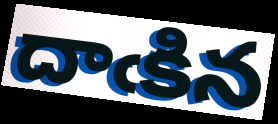
దాఁకిన